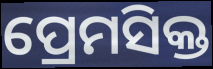
ପ୍ରେମସିକ୍ତ